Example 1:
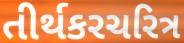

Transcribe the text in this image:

તીર્થકરચરિત્ર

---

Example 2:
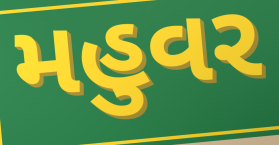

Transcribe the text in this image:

મહુવર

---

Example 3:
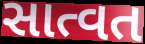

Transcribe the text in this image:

સાત્વત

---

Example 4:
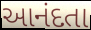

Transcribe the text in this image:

આનંદતા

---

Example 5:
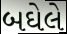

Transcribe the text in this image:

બઘેલે